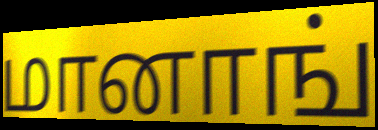
மானாங்